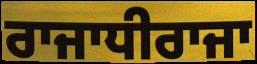
ਰਾਜਾਧੀਰਾਜਾ